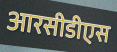
आरसीडीएस